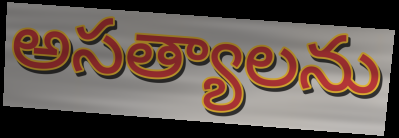
అసత్యాలను